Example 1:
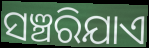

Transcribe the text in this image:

ସଞ୍ଚରିଯାଏ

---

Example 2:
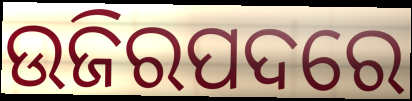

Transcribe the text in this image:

ଉଜିରପଦରେ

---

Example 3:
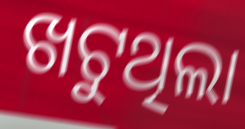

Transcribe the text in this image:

ଖଟୁଥିଲା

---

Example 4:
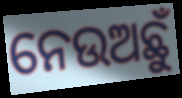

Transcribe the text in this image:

ନେଉଅଛୁଁ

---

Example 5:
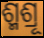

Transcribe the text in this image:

ଶ୍ମଶ୍ରୂ